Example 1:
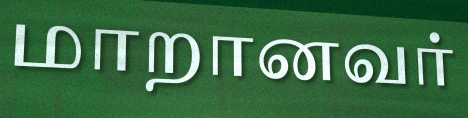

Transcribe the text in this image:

மாறானவர்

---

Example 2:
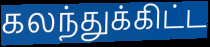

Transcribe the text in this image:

கலந்துக்கிட்ட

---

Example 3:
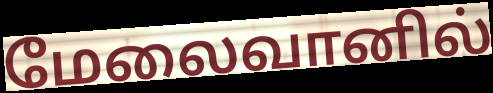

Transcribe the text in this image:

மேலைவானில்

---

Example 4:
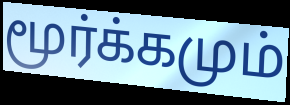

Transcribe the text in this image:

மூர்க்கமும்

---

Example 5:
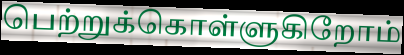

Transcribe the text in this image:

பெற்றுக்கொள்ளுகிறோம்